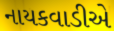
નાયકવાડીએ